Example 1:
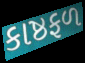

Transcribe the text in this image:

કાષ્ઠફળ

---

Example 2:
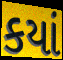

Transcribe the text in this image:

કયાં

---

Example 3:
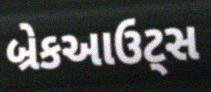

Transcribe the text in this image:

બ્રેકઆઉટ્સ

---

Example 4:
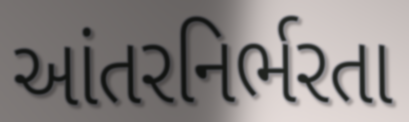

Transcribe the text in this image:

આંતરનિર્ભરતા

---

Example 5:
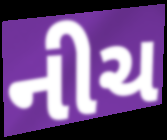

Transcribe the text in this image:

નીચ